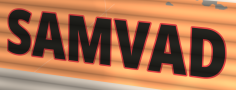
SAMVAD